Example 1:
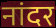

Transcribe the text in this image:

नांदर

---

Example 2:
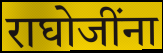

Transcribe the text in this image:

राघोजींना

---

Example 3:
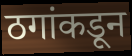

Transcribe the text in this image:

ठगांकडून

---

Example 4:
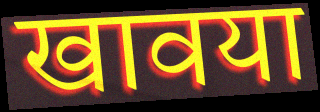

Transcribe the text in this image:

खावया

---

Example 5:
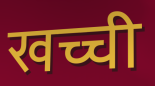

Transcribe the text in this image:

खच्ची